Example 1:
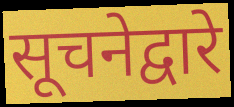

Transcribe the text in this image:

सूचनेद्वारे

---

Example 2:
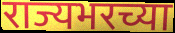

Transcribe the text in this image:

राज्यभरच्या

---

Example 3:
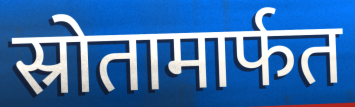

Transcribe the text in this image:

स्रोतामार्फत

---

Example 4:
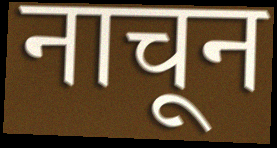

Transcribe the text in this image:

नाचून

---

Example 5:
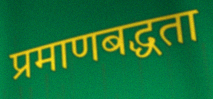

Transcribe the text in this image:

प्रमाणबद्धता